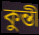
কুন্তী